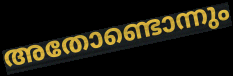
അതോണ്ടൊന്നും